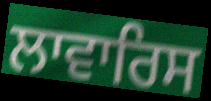
ਲਾਵਾਰਿਸ